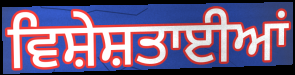
ਵਿਸ਼ੇਸ਼ਤਾਈਆਂ